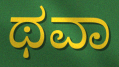
ಥವಾ